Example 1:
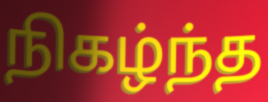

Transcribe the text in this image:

நிகழ்ந்த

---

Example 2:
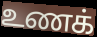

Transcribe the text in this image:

உணக்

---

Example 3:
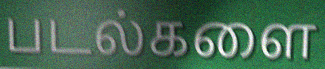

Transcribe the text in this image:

படல்களை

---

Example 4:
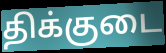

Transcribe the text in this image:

திக்குடை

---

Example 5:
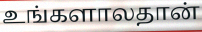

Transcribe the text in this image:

உங்களாலதான்